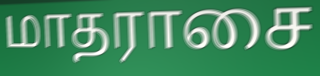
மாதராசை